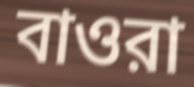
বাওরা